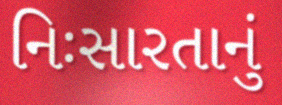
નિઃસારતાનું